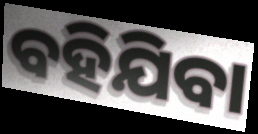
ବହିଯିବା